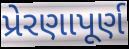
પ્રેરણાપૂર્ણ